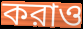
করাও